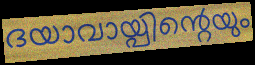
ദയാവായ്പിന്റെയും